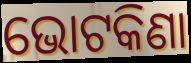
ଭୋଟକିଣା